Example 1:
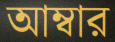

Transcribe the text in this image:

আম্বার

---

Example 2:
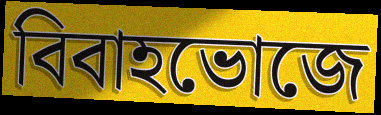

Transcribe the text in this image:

বিবাহভোজে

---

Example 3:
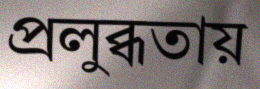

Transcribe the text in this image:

প্রলুব্ধতায়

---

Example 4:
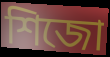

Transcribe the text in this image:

শিজো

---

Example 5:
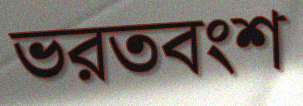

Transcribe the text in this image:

ভরতবংশ